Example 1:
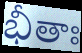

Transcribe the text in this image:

భీతాః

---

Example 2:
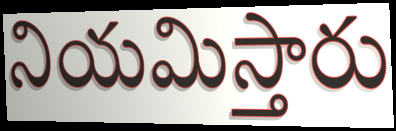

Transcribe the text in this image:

నియమిస్తారు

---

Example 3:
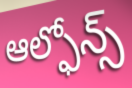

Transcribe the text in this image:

ఆల్ఫోన్స్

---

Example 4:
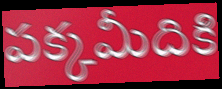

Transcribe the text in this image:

పక్కమీదికి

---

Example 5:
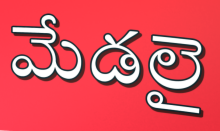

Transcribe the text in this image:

మేడలై